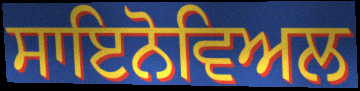
ਸਾਇਨੋਵਿਅਲ